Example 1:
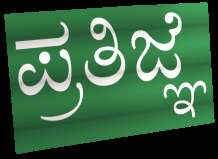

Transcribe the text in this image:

ಪ್ರತಿಜ್ಞೆ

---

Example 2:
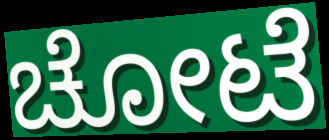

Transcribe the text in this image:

ಚೋಟೆ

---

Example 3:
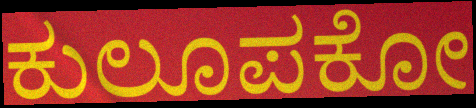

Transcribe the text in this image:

ಕುಲೂಪಕೋ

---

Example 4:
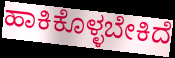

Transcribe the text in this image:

ಹಾಕಿಕೊಳ್ಳಬೇಕಿದೆ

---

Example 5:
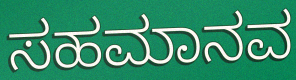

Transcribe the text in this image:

ಸಹಮಾನವ